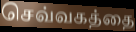
செவ்வகத்தை